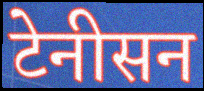
टेनीसन